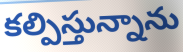
కల్పిస్తున్నాను